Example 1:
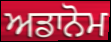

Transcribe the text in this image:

ਅਡਾਨੋਮ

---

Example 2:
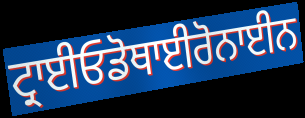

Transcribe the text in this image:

ਟ੍ਰਾਈਓਡੋਥਾਈਰੋਨਾਈਨ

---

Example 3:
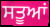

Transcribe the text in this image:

ਸਤੂਆਂ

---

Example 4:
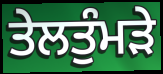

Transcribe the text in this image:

ਤੇਲਤੁੰਮੜੇ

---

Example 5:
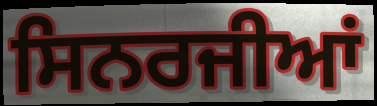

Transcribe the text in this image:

ਸਿਨਰਜੀਆਂ